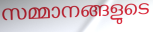
സമ്മാനങ്ങളുടെ